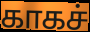
காகச்